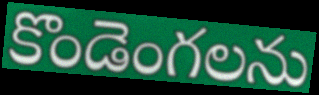
కొండెంగలను